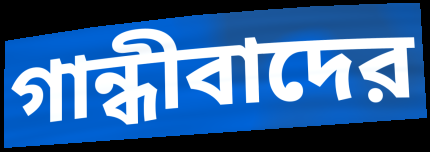
গান্ধীবাদের